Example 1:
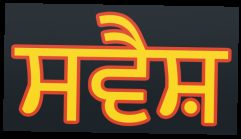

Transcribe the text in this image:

ਸਵੈਸ਼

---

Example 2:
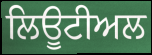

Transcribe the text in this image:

ਲਿਊਟੀਅਲ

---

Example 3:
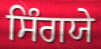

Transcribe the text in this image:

ਸਿੰਗਯੇ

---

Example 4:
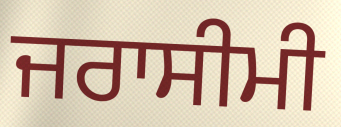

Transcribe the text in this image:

ਜਰਾਸੀਮੀ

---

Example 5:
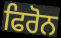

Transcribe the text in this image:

ਫਿਰੋਨ